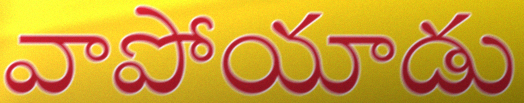
వాపోయాడు